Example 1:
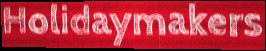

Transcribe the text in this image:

Holidaymakers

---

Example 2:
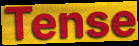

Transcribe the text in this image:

Tense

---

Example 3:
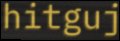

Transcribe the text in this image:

hitguj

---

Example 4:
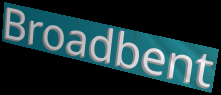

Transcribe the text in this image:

Broadbent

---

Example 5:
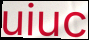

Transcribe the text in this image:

uiuc